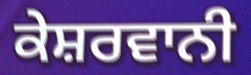
ਕੇਸ਼ਰਵਾਨੀ